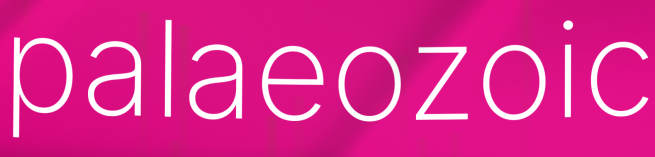
palaeozoic